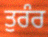
ਤੁਰੰਰ